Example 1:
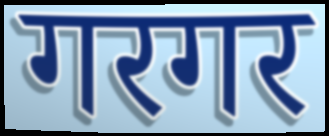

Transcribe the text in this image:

गरगर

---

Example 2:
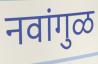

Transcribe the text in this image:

नवांगुळ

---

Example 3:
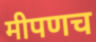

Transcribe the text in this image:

मीपणच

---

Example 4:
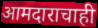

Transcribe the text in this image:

आमदाराचाही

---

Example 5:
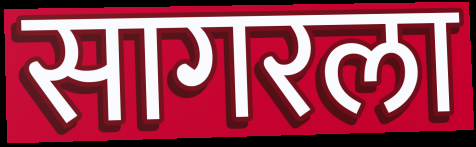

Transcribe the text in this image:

सागरला